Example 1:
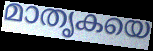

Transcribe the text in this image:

മാതൃകയെ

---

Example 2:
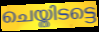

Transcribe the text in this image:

ചെയ്തിടട്ടെ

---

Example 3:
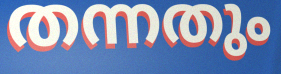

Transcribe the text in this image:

തന്നതും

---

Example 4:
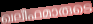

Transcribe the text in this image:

ഖലീഫമാരുടെ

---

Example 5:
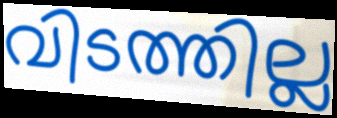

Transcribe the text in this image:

വിടത്തില്ല